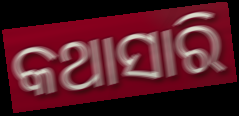
କଥାସାରି